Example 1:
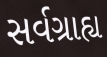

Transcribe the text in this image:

સર્વગ્રાહ્ય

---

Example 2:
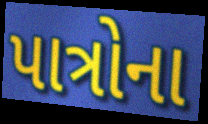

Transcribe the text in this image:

પાત્રોના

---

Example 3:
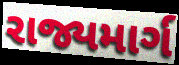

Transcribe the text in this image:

રાજ્યમાર્ગ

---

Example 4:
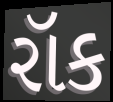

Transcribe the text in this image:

રૉક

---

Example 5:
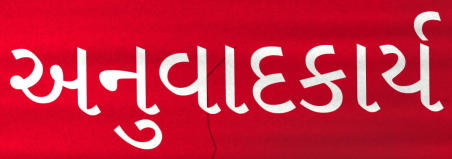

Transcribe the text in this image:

અનુવાદકાર્ય